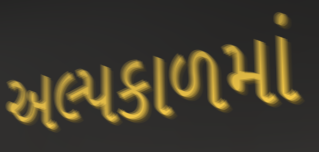
અલ્પકાળમાં